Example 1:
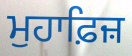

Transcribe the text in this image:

ਮੁਹਾਫ਼ਿਜ਼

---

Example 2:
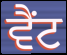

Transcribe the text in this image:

ਵੈਂਟ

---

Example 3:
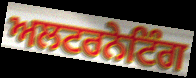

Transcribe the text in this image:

ਅਲਟਰਨੇਟਿੰਗ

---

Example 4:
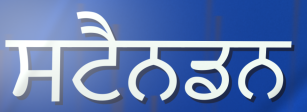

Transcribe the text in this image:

ਸਟੈਨਡਨ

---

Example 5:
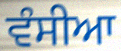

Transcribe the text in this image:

ਵੰਸੀਆ